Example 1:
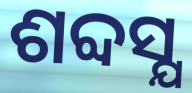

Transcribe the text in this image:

ଶବ୍ଦସ୍ଯ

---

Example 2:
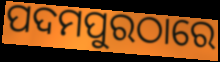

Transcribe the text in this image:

ପଦମପୁରଠାରେ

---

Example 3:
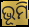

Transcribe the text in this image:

ଭୂମି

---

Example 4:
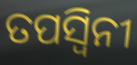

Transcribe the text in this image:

ତପସ୍ଵିନୀ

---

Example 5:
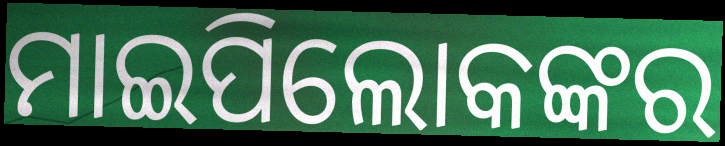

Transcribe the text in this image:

ମାଇପିଲୋକଙ୍କର